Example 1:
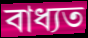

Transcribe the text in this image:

বাধ্যত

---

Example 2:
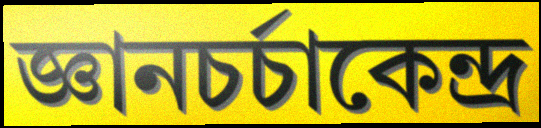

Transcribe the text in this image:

জ্ঞানচর্চাকেন্দ্র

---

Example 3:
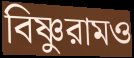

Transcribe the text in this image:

বিষ্ণুরামও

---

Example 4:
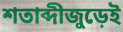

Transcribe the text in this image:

শতাব্দীজুড়েই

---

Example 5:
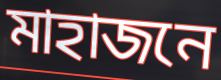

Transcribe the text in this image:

মাহাজনে